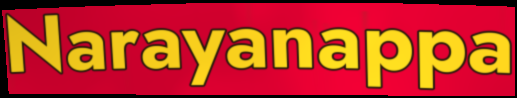
Narayanappa